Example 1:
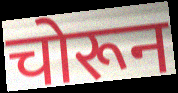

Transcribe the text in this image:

चोरून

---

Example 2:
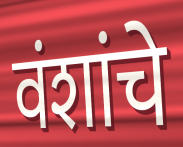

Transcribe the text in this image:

वंशांचे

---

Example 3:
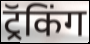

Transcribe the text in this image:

ट्रॅकिंग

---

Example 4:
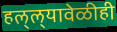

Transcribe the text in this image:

हल्ल्यावेळीही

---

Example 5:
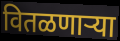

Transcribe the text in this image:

वितळणाऱ्या